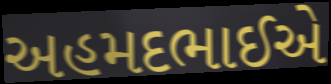
અહમદભાઈએ